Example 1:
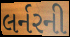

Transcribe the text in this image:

લર્નરની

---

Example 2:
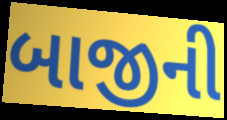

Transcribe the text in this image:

બાજીની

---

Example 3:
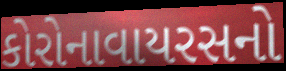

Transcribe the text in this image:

કોરોનાવાયરસનો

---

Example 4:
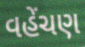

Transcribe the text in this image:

વહેંચણ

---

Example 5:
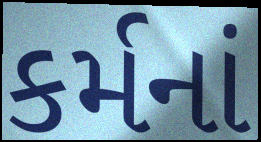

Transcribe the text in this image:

કર્મનાં